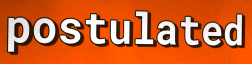
postulated